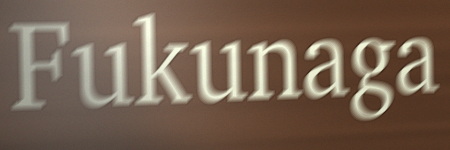
Fukunaga